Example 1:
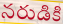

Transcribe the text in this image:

నరుడికి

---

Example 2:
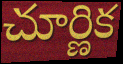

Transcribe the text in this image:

చూర్ణిక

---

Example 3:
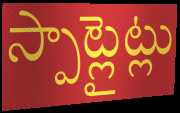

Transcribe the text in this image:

స్పాట్లైట్లు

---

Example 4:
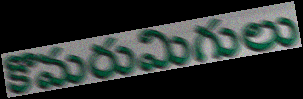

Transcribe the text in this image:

కొమరుమిగులు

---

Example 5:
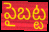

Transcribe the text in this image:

పైబట్ట